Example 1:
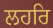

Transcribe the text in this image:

ਲਹਰਿ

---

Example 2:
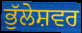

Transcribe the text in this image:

ਭੁੱਲੇਸ਼ਵਰ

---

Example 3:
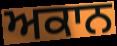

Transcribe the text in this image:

ਅਕਾਨ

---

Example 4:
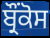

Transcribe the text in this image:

ਬ੍ਰੌਂਕੋਸ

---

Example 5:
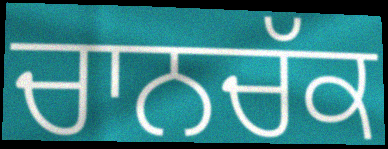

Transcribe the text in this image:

ਚਾਨਚੱਕ